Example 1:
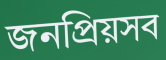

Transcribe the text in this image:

জনপ্রিয়সব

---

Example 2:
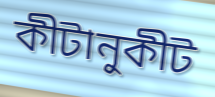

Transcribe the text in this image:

কীটানুকীট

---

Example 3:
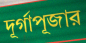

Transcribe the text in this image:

দূর্গাপূজার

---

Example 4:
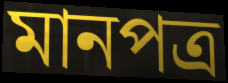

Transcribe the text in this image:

মানপত্র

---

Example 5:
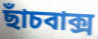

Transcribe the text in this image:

ছাঁচবাক্স